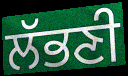
ਲੱਭਣੀ